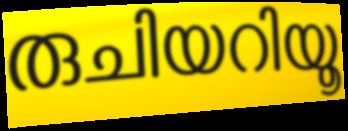
രുചിയറിയൂ